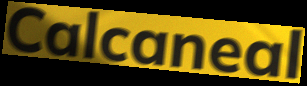
Calcaneal